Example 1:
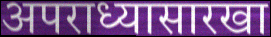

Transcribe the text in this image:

अपराध्यासारखा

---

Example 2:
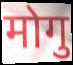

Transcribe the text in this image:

मोगु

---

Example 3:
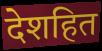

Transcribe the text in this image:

देशहित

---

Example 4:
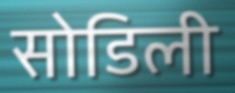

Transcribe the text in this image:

सोडिली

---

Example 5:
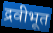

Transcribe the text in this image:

द्रवीभूत